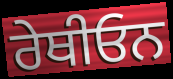
ਰੇਥੀਓਨ